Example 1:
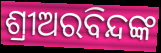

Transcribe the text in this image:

ଶ୍ରୀଅରବିନ୍ଦଙ୍କ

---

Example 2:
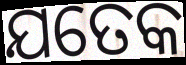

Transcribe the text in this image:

ଯତେକ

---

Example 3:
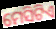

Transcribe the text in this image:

ମେସିଟିଏ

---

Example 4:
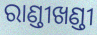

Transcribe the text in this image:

ରାଣ୍ଡୀଖଣ୍ଡୀ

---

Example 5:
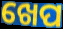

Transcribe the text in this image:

ଖେପ